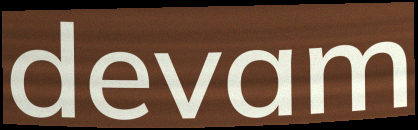
devam